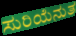
ಸುರಿಯೆನುತ